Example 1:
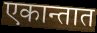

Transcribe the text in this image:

एकान्तात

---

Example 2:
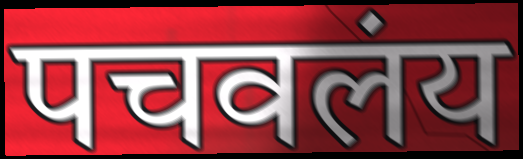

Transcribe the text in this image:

पचवलंय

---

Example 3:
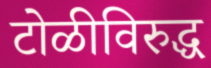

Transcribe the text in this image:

टोळीविरुद्ध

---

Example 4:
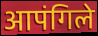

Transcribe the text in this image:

आपंगिले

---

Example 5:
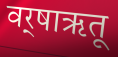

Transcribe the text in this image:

वर्षाऋतू